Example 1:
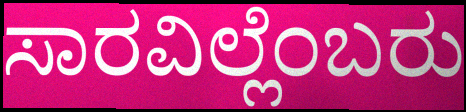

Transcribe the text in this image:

ಸಾರವಿಲ್ಲೆಂಬರು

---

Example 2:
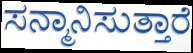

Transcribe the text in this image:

ಸನ್ಮಾನಿಸುತ್ತಾರೆ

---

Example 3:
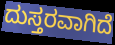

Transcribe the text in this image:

ದುಸ್ತರವಾಗಿದೆ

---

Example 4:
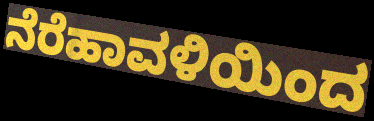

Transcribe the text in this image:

ನೆರೆಹಾವಳಿಯಿಂದ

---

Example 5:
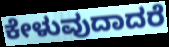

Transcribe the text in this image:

ಕೇಳುವುದಾದರೆ